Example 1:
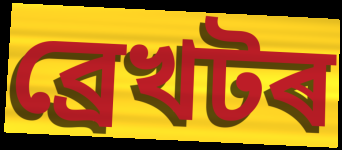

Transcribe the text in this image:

ব্ৰেখটৰ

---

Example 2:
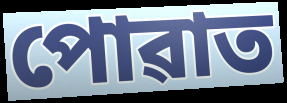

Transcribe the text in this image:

পোৱাত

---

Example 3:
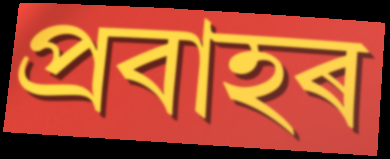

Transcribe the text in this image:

প্ৰবাহৰ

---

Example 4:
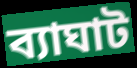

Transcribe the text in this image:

ব্যাঘাট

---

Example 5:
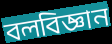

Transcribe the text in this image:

বলবিজ্ঞান